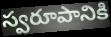
స్వరూపానికి